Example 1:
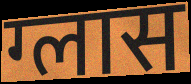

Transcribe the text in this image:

ग्लास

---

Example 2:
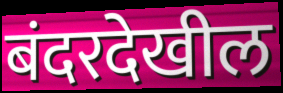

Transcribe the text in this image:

बंदरदेखील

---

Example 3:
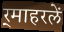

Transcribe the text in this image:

र्माहरलें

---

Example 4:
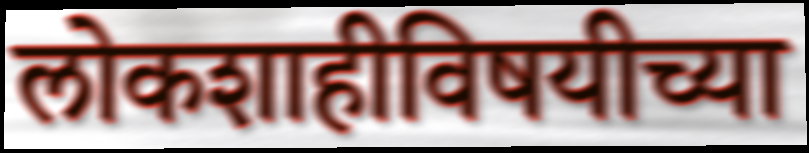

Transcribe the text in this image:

लोकशाहीविषयीच्या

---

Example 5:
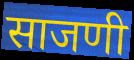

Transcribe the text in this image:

साजणी